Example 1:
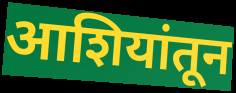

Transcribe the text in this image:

आशियांतून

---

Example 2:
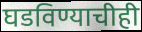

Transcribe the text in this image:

घडविण्याचीही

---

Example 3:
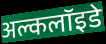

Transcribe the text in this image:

अल्कलॉइडे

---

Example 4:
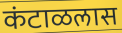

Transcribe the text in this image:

कंटाळलास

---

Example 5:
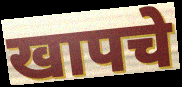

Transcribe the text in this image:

खापचे